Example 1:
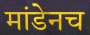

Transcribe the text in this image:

मांडेनच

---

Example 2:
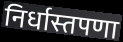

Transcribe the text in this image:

निर्धास्तपणा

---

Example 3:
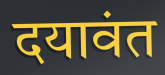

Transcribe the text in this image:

दयावंत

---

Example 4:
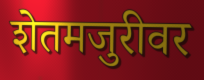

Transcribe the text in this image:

शेतमजुरीवर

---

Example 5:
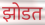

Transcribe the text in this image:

झोडत